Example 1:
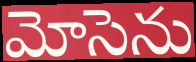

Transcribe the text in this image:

మోసెను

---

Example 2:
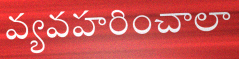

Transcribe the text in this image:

వ్యవహరించాలా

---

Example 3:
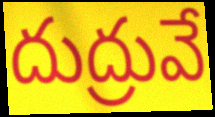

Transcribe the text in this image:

దుద్రువే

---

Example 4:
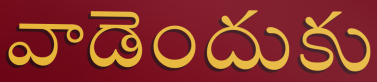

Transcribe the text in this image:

వాడెందుకు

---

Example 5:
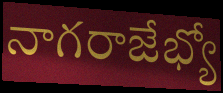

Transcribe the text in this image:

నాగరాజేభ్యో